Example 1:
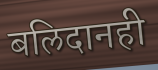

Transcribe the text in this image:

बलिदानही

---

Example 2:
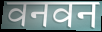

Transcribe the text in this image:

वनवन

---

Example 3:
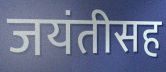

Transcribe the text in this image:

जयंतीसह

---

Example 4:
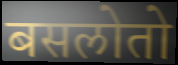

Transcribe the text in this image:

बसलोतो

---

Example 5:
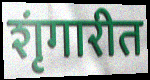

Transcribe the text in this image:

शृंगारीत